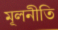
মূলনীতি